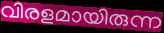
വിരളമായിരുന്ന